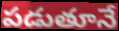
పడుతూనే